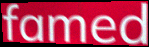
famed